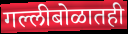
गल्लीबोळातही